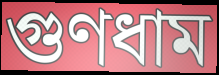
গুণধাম